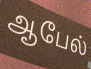
ஆபேல்